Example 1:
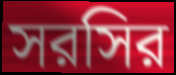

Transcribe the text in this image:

সরসির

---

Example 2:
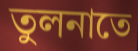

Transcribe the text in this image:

তুলনাতে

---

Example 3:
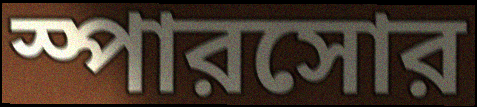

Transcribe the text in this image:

স্পারসোর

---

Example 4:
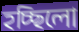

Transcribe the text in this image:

হচ্ছিলো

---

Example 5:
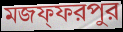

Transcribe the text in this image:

মজফ্ফরপুর